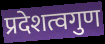
प्रदेशत्वगुण